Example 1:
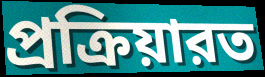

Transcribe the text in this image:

প্রক্রিয়ারত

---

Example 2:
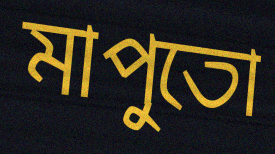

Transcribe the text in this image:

মাপুতো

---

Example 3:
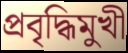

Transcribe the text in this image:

প্রবৃদ্ধিমুখী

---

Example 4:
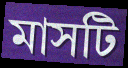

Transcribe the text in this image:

মাসটি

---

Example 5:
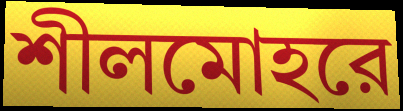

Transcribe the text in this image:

শীলমোহরে